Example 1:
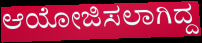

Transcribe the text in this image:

ಆಯೋಜಿಸಲಾಗಿದ್ದ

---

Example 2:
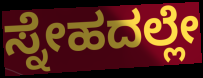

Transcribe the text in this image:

ಸ್ನೇಹದಲ್ಲೇ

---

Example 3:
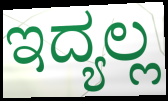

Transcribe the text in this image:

ಇದ್ಯಲ್ಲ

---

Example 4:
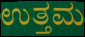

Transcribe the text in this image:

ಉತ್ತಮ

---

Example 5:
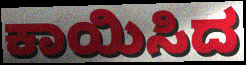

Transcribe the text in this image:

ಕಾಯಿಸಿದ